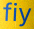
fiy